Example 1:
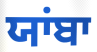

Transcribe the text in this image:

ਯਾਂਬਾ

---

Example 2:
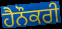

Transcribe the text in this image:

ਹੈਨੌਕਰੀ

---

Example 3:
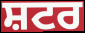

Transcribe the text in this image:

ਸ਼ਟਰ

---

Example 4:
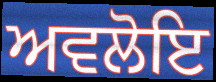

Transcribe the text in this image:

ਅਵਲੋਇ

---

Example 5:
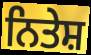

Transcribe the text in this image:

ਨਿਤੇਸ਼